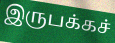
இருபக்கச்